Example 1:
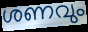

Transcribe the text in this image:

ശണവും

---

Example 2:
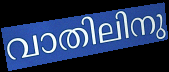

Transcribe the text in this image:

വാതിലിനു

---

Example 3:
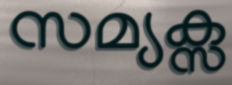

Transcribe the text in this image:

സമ്യക്സ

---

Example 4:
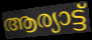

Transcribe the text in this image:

ആര്യാട്ട്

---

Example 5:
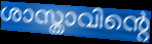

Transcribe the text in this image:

ശാസ്താവിന്റെ